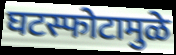
घटस्फोटामुळे